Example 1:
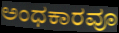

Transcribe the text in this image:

ಅಂಧಕಾರವೂ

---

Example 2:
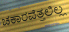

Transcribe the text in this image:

ಚಕಾರವೆತ್ತಲಿಲ್ಲ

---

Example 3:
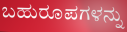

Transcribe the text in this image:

ಬಹುರೂಪಗಳನ್ನು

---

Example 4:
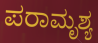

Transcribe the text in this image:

ಪರಾಮೃಶ್ಯ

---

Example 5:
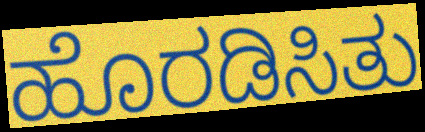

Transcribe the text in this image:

ಹೊರಡಿಸಿತು